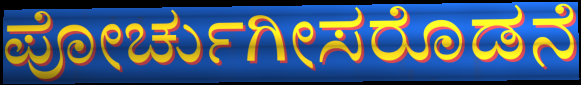
ಪೋರ್ಚುಗೀಸರೊಡನೆ